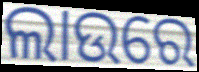
ଲାଉରେ